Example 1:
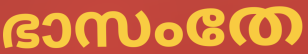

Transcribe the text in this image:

ഭാസംതേ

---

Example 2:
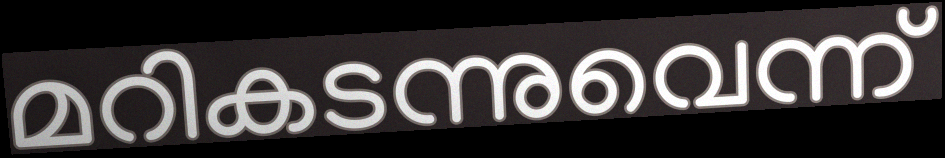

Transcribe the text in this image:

മറികടന്നുവെന്ന്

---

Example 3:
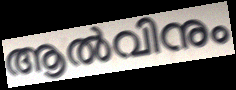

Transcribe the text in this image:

ആൽവിനും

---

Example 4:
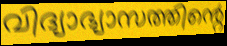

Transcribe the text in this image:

വിദ്യാഭ്യാസത്തിന്റെ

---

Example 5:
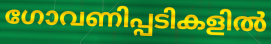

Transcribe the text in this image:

ഗോവണിപ്പടികളിൽ